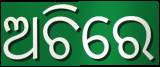
ଅଚିରେ